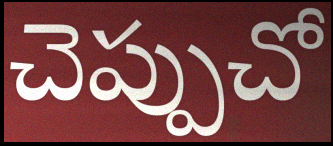
చెప్పుచో